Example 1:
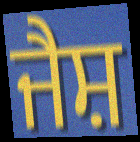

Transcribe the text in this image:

ਜੈਸ਼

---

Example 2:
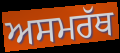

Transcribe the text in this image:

ਅਸਮਰੱਥ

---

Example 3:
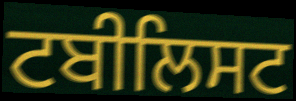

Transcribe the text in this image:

ਟਬੀਲਿਸਟ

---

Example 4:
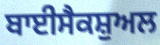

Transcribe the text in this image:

ਬਾਈਸੈਕਸ਼ੁਅਲ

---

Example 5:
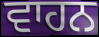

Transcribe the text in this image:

ਵਾਹਨ